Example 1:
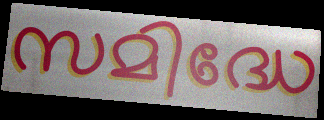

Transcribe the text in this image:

സമിദ്ധേ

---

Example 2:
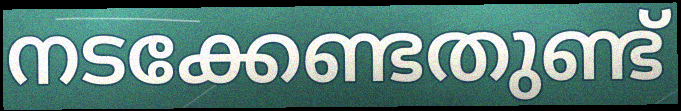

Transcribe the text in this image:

നടക്കേണ്ടതുണ്ട്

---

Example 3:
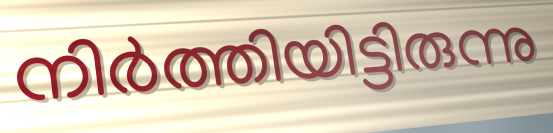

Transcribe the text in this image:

നിർത്തിയിട്ടിരുന്നു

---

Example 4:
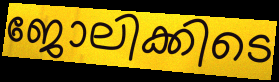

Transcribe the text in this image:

ജോലിക്കിടെ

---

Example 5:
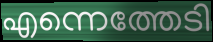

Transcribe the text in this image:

എന്നെത്തേടി